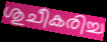
ശുചീകരിച്ച